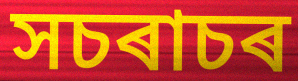
সচৰাচৰ